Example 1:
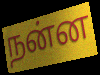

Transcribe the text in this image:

நன்ன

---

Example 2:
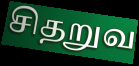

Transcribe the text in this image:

சிதறுவ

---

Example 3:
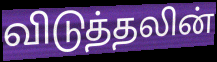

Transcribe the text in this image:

விடுத்தலின்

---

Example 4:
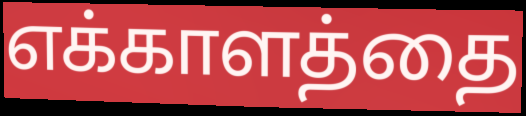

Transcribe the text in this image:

எக்காளத்தை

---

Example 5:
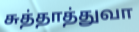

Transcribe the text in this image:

சுத்தாத்துவா